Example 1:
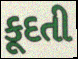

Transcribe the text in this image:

કૂદતી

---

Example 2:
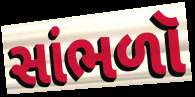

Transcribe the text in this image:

સાંભળૉ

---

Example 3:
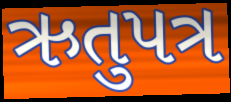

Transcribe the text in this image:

ઋતુપત્ર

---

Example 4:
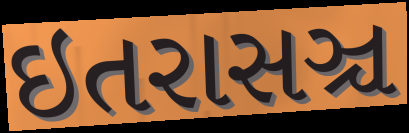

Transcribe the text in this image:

ઇતરાસઞ્ચ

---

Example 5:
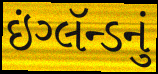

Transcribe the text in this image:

ઇંગ્લૅન્ડનું